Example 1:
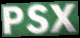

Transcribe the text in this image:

PSX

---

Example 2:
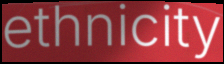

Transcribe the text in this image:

ethnicity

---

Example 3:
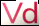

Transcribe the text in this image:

Vd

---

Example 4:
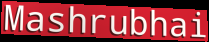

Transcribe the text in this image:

Mashrubhai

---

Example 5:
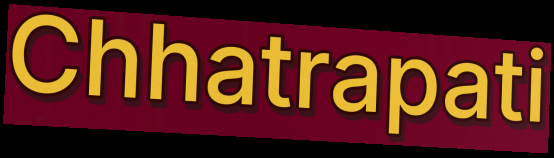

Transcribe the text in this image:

Chhatrapati